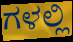
ಗಳಲ್ಲಿ